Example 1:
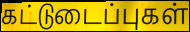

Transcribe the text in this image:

கட்டுடைப்புகள்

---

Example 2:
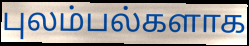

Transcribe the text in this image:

புலம்பல்களாக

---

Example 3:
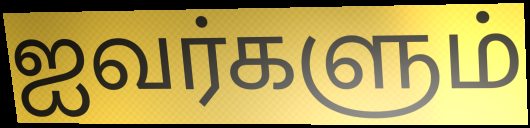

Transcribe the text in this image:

ஐவர்களும்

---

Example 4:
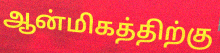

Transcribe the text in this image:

ஆன்மிகத்திற்கு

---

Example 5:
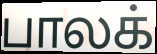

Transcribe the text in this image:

பாலக்